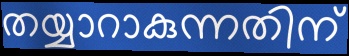
തയ്യാറാകുന്നതിന്